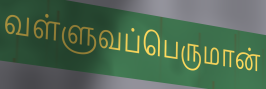
வள்ளுவப்பெருமான்